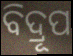
ବିଦ୍ରୂପ